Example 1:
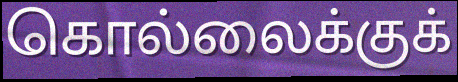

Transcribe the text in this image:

கொல்லைக்குக்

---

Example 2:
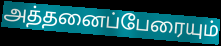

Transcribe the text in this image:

அத்தனைப்பேரையும்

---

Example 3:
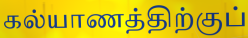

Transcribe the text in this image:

கல்யாணத்திற்குப்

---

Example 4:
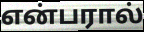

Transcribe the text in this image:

என்பரால்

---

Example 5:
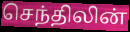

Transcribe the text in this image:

செந்திலின்